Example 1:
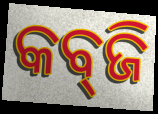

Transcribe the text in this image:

କବ୍‍ଜି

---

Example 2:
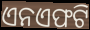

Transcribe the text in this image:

ଏନଏଫଟି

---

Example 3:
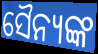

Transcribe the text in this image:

ସୈନ୍ୟଙ୍କ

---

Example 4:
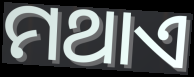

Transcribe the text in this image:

ମଥାଏ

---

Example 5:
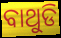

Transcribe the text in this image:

ବାଥୁଡି